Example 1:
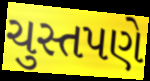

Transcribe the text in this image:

ચુસ્તપણે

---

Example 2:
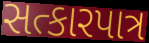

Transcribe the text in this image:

સત્કારપાત્ર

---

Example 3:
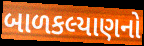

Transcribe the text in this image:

બાળકલ્યાણનો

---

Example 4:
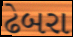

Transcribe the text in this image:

ઢેબરા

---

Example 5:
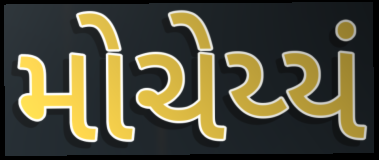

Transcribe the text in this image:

મોચેય્યં